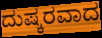
ದುಷ್ಕರವಾದ